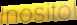
Inositol